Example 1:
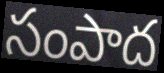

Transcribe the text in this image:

సంపాద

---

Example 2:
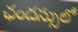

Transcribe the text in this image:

ఛందస్సులో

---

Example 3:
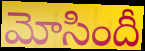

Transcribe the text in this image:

మోసిందీ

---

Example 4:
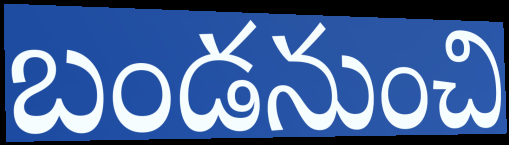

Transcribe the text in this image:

బండనుంచి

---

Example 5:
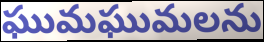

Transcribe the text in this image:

ఘుమఘుమలను